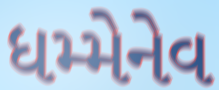
ધમ્મેનેવ